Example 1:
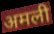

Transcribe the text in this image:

अमली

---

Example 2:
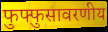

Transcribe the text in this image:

फुफ्फुसावरणीय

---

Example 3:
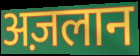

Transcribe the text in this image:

अज़लान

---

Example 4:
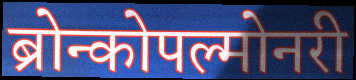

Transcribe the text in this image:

ब्रोन्कोपल्मोनरी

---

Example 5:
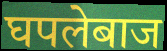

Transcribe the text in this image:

घपलेबाज